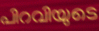
പിറവിയുടെ